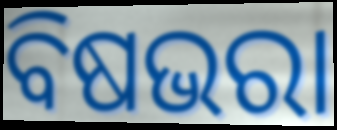
ବିଷଭରା